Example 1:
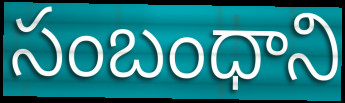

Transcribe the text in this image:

సంబంధాని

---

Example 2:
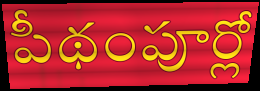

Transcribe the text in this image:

పీథంపూర్లో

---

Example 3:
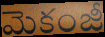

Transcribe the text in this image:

మెకంజీ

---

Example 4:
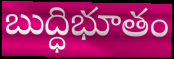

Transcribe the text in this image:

బుద్ధిభూతం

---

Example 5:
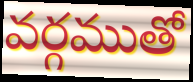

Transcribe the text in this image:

వర్గముతో